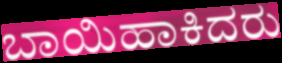
ಬಾಯಿಹಾಕಿದರು